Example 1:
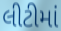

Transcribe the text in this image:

લીટીમાં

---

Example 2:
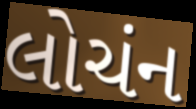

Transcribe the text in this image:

લોચંન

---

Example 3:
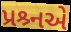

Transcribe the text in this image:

પ્રશ્ર્નએ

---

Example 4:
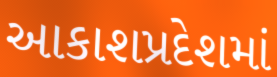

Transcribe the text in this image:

આકાશપ્રદેશમાં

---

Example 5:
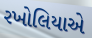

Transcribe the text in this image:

રખોલિયાએ